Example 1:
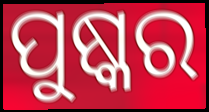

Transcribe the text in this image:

ପୁଷ୍କର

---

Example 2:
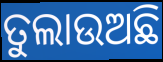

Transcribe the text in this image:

ତୁଲାଉଅଛି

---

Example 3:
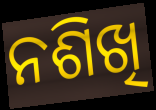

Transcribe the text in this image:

ନଶିଖି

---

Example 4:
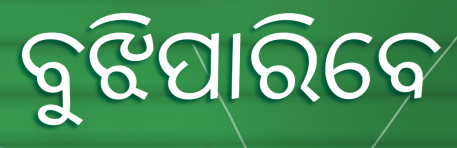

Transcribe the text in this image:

ବୁଝିପାରିବେ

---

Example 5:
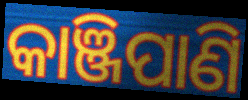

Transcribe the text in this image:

କାଞ୍ଜିପାଣି